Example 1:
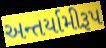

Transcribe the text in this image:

અન્તર્યામીરૂપ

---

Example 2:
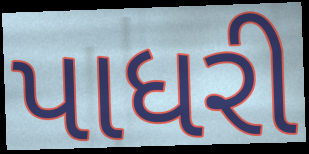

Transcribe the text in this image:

પાધરી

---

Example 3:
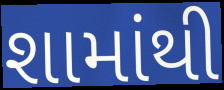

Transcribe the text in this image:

શામાંથી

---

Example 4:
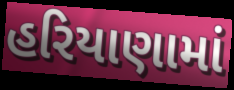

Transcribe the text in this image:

હરિયાણામાં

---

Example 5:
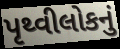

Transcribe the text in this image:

પૃથ્વીલોકનું